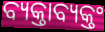
ବ୍ୟକ୍ତାବ୍ୟକ୍ତଂ